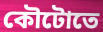
কৌটোতে